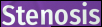
Stenosis